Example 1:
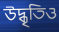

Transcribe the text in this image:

উদ্ধৃতিও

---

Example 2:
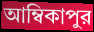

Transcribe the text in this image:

আম্বিকাপুর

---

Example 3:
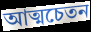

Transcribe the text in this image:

আত্মচেতন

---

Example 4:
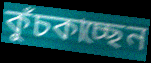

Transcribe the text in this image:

কুঁচকাচ্ছেন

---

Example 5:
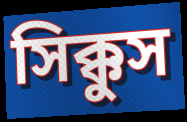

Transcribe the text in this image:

সিক্কুস